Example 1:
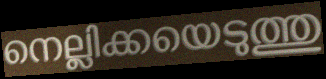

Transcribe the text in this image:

നെല്ലിക്കയെടുത്തു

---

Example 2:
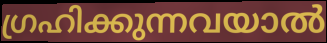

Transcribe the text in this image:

ഗ്രഹിക്കുന്നവയാൽ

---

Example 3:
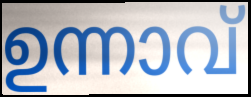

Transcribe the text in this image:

ഉന്നാവ്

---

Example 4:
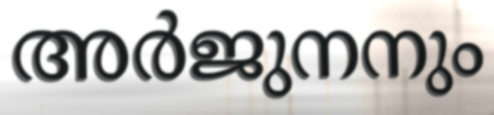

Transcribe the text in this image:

അർജുനനും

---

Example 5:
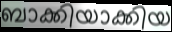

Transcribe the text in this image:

ബാക്കിയാക്കിയ